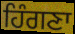
ਹਿੰਗਣਾ